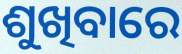
ଶୁଖିବାରେ